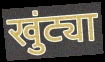
खुंट्या